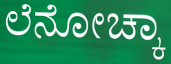
ಲೆನೋಚ್ಕಾ